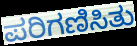
ಪರಿಗಣಿಸಿತು